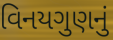
વિનયગુણનું